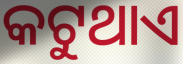
କଟୁଥାଏ